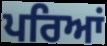
ਪਰਿਆਂ